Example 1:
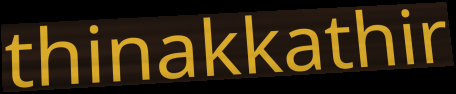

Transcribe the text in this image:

thinakkathir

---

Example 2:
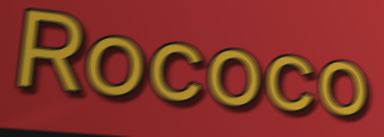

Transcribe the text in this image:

Rococo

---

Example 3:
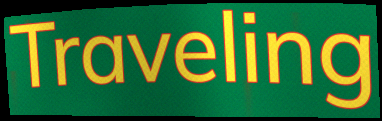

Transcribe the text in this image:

Traveling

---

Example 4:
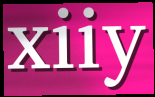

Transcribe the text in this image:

xiiy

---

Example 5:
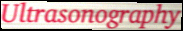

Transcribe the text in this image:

Ultrasonography